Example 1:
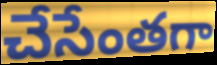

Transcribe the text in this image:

చేసేంతగా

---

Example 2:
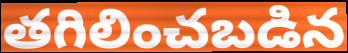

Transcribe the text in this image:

తగిలించబడిన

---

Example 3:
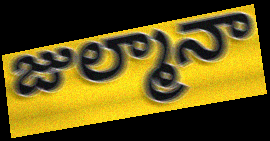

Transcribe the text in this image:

జుల్మానా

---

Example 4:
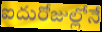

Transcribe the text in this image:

ఐదురోజుల్లోనే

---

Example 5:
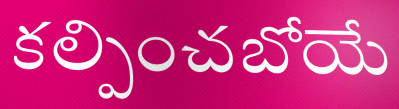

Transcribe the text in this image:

కల్పించబోయే